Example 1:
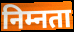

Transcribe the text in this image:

निम्नता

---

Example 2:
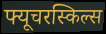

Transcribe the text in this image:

फ्यूचरस्किल्स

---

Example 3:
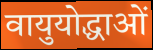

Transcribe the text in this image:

वायुयोद्धाओं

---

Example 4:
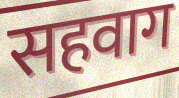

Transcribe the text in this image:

सहवाग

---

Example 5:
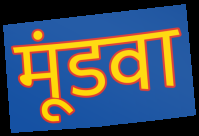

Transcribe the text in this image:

मूंडवा